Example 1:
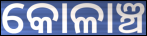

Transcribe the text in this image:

କୋଳାଞ୍ଚ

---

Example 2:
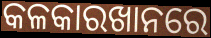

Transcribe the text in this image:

କଳକାରଖାନରେ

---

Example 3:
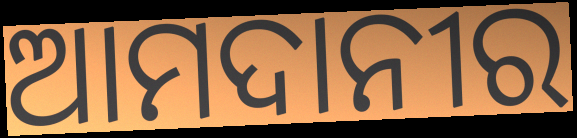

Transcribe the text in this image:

ଆମଦାନୀର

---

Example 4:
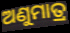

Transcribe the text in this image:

ଅଣୁମାତ୍ର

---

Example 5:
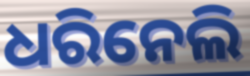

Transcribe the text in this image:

ଧରିନେଲି